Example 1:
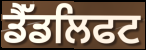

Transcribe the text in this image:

ਡੈੱਡਲਿਫਟ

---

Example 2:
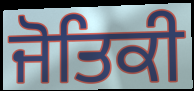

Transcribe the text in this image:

ਜੋਤਿਕੀ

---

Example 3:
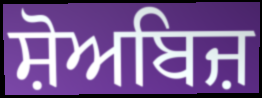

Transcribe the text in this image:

ਸ਼ੋਅਬਿਜ਼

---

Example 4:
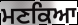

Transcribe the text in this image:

ਮਣਕਿਆ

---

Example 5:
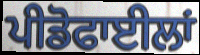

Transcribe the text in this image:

ਪੀਡੋਫਾਈਲਾਂ